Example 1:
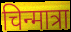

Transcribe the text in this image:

चिन्मात्रा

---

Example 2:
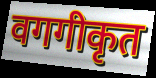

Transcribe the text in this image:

वगगीकृत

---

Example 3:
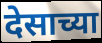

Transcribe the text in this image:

देसाच्या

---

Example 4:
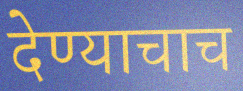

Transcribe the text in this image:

देण्याचाच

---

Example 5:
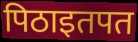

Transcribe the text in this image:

पिठाइतपत